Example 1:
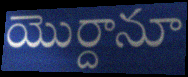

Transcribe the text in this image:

యొర్దానూ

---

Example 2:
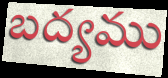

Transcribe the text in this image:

బద్యము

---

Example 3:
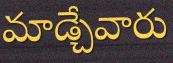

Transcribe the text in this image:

మాడ్చేవారు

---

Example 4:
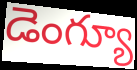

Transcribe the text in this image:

డెంగ్యూ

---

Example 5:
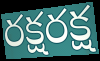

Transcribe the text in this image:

రక్షరక్ష